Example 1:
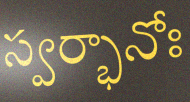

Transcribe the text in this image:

స్వర్భానోః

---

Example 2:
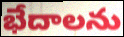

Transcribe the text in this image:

భేదాలను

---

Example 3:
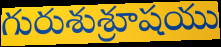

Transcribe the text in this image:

గురుశుశ్రూషయు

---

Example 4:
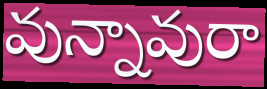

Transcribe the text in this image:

వున్నావురా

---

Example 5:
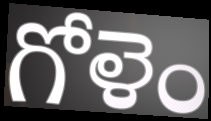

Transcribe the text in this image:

గోళెం